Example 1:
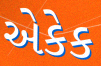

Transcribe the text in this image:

એકેક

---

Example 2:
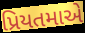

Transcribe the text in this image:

પ્રિયતમાએ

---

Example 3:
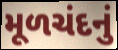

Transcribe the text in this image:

મૂળચંદનું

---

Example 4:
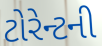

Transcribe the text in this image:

ટોરેન્ટની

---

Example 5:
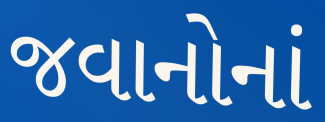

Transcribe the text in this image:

જવાનોનાં